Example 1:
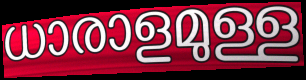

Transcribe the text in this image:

ധാരാളമുള്ള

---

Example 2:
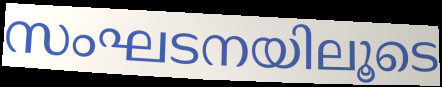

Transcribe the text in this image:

സംഘടനയിലൂടെ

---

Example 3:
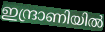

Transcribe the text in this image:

ഇന്ദ്രാണിയിൽ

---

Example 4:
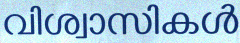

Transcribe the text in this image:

വിശ്വാസികൾ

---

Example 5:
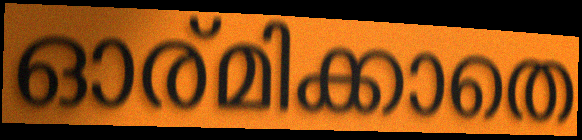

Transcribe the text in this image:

ഓര്മിക്കാതെ